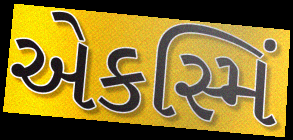
એકસ્મિં